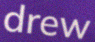
drew